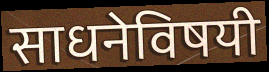
साधनेविषयी